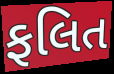
ફલિત